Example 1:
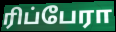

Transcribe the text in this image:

ரிப்பேரா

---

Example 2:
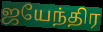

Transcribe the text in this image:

ஜயேந்திர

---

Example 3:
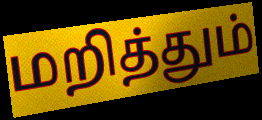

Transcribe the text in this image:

மறித்தும்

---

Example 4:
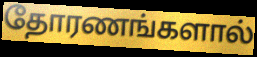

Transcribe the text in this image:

தோரணங்களால்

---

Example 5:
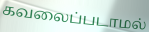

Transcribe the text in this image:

கவலைப்படாமல்